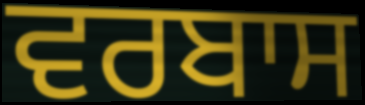
ਵਰਬਾਸ